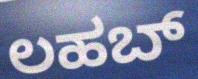
ಲಹಬ್